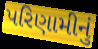
પરિણામીનું